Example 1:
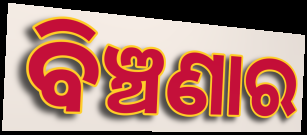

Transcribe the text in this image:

ବିଞ୍ଚଣାର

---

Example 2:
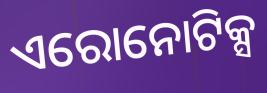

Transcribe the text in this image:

ଏରୋନୋଟିକ୍ସ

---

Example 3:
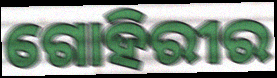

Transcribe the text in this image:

ଗୋହିରୀର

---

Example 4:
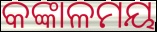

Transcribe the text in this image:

କଙ୍କାଳମୟ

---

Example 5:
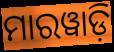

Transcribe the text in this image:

ମାରୱାଡ଼ି